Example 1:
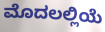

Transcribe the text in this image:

ಮೊದಲಲ್ಲಿಯೆ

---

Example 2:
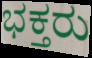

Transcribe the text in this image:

ಭಕ್ತರು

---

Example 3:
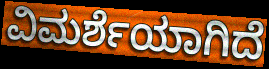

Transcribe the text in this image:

ವಿಮರ್ಶೆಯಾಗಿದೆ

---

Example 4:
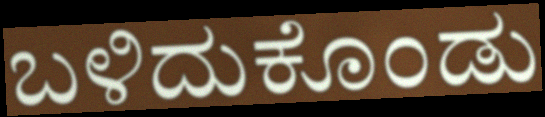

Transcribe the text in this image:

ಬಳಿದುಕೊಂಡು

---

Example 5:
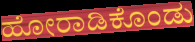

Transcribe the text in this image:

ಹೋರಾಡಿಕೊಂಡು